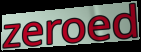
zeroed